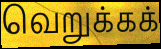
வெறுக்கக்